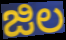
జిల